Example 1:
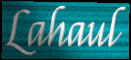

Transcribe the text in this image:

Lahaul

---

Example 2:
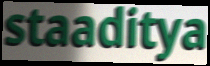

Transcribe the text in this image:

staaditya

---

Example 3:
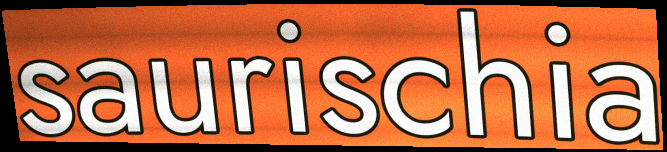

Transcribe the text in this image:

saurischia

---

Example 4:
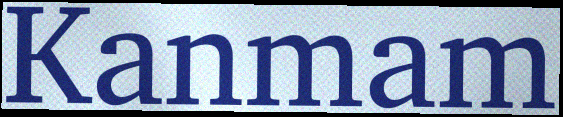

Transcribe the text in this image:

Kanmam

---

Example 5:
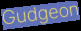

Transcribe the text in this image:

Gudgeon